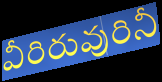
వీరిరువురినీ